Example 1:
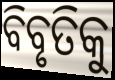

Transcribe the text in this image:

ବିବୃତିକୁ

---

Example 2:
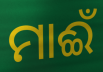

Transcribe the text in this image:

ମାଈଁ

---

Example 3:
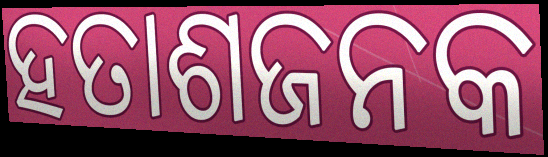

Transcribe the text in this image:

ହତାଶଜନକ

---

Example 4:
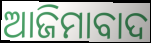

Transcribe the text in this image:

ଆଜିମାବାଦ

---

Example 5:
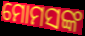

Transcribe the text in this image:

ମୋମସଙ୍କ